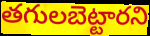
తగులబెట్టారని